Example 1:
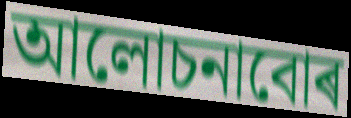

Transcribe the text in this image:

আলোচনাবোৰ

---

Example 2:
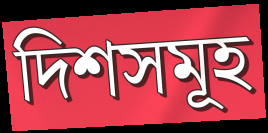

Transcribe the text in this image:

দিশসমূহ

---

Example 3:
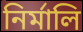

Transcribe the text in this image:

নিৰ্মালি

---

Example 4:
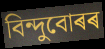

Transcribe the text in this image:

বিন্দুবোৰৰ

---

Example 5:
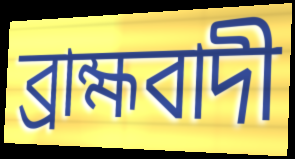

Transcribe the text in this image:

ব্ৰাহ্মবাদী